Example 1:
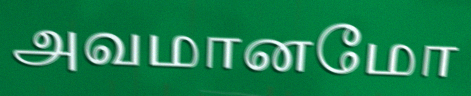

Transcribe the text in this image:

அவமானமோ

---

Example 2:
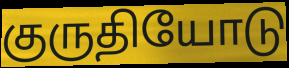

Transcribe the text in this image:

குருதியோடு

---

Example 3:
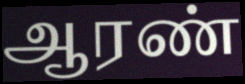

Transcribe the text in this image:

ஆரண்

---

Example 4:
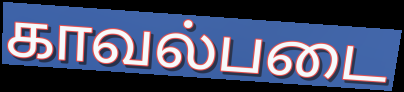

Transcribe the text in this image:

காவல்படை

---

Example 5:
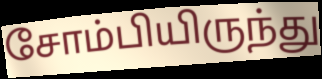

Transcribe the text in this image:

சோம்பியிருந்து